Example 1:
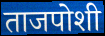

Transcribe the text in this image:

ताजपोशी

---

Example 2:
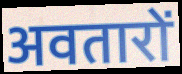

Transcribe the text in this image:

अवतारों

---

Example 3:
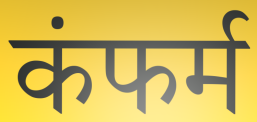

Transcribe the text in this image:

कंफर्म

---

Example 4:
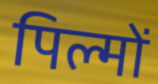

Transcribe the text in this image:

पिल्मों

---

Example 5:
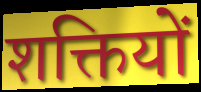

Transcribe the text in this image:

शक्तियों